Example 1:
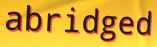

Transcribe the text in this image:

abridged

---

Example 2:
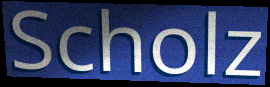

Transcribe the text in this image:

Scholz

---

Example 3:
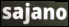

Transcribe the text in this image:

sajano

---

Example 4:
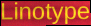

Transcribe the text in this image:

Linotype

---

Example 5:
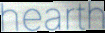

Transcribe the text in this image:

hearth